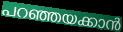
പറഞ്ഞയക്കാൻ